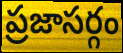
ప్రజాసర్గం